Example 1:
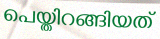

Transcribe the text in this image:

പെയ്തിറങ്ങിയത്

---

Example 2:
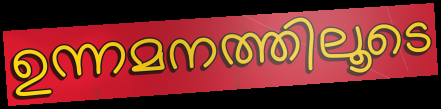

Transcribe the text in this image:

ഉന്നമനത്തിലൂടെ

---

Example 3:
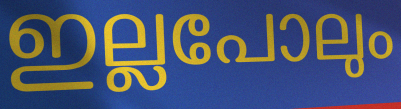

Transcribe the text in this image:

ഇല്ലപോലും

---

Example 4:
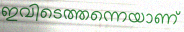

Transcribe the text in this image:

ഇവിടെത്തന്നെയാണ്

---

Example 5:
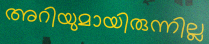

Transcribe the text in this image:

അറിയുമായിരുന്നില്ല